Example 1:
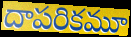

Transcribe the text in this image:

దాపరికమూ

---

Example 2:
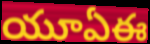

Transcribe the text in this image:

యూఏఈ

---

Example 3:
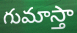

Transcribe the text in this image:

గుమాస్తా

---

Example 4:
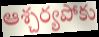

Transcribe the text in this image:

ఆశ్చర్యపోకు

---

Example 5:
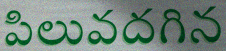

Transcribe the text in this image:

పిలువదగిన